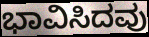
ಭಾವಿಸಿದವು